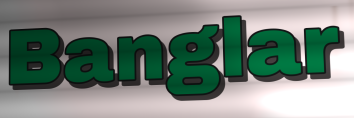
Banglar